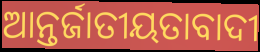
ଆନ୍ତର୍ଜାତୀୟତାବାଦୀ